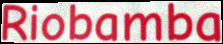
Riobamba